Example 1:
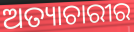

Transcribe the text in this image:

ଅତ୍ୟାଚାରୀର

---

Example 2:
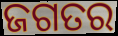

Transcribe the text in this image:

ଜଗତର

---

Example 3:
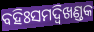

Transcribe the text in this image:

ବହିଃସମଦ୍ୱିଖଣ୍ଡକ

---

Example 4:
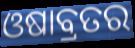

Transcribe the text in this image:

ଓଷାବ୍ରତର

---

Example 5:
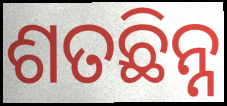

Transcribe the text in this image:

ଶତଛିନ୍ନ